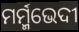
ମର୍ମ୍ମଭେଦୀ